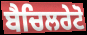
ਬੈਚਿਲਰੇਟੋ